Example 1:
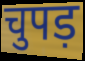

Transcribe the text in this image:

चुपड़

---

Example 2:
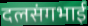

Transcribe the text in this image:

दलसंगभाई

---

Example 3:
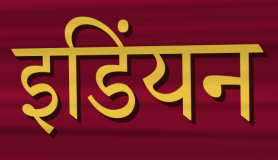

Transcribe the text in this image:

इडिंयन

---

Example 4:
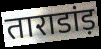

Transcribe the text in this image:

ताराडांड़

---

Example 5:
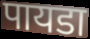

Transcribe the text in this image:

पायडा